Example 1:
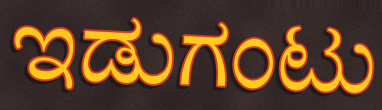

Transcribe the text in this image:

ಇಡುಗಂಟು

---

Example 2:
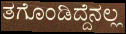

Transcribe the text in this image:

ತಗೊಂಡಿದ್ದೆನಲ್ಲ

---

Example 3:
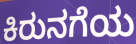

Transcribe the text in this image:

ಕಿರುನಗೆಯ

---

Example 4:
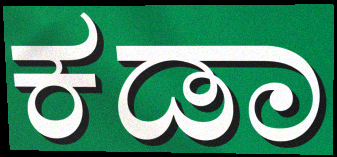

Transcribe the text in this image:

ಕಡಾ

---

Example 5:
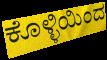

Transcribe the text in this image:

ಕೊಳ್ಳಿಯಿಂದ